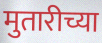
मुतारीच्या